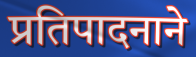
प्रतिपादनाने